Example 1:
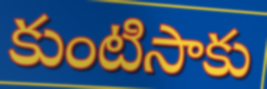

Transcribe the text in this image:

కుంటిసాకు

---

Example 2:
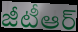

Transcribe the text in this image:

జీటీఆర్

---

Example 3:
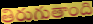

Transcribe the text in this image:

తిరుగుతాంది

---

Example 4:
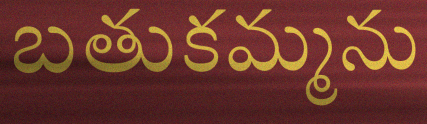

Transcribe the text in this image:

బతుకమ్మను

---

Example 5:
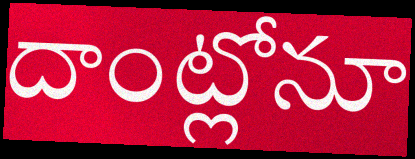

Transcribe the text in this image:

దాంట్లోనూ